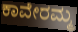
ಕಾವೇರಮ್ಮ